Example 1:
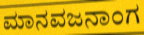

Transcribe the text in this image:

ಮಾನವಜನಾಂಗ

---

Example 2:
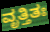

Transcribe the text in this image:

ವೃತ್ತಿತಃ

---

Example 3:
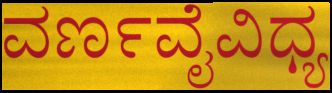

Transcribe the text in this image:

ವರ್ಣವೈವಿಧ್ಯ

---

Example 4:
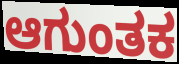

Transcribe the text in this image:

ಆಗುಂತಕ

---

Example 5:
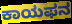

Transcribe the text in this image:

ಕಾಯಫನ